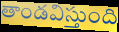
తాండవిస్తుంది